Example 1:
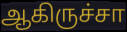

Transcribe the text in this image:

ஆகிருச்சா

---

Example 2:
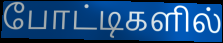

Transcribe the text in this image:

போட்டிகளில்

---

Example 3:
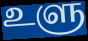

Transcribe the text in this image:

உளு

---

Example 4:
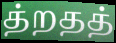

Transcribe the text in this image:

த்றதத்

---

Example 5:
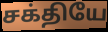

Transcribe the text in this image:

சக்தியே